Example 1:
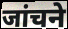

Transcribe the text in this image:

जांचने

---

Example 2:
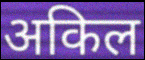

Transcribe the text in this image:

अकिल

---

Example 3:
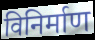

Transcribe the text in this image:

विनिर्माण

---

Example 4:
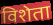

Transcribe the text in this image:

विशेता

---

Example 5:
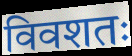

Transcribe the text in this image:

विवशतः